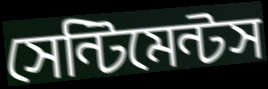
সেন্টিমেন্টস